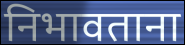
निभावताना